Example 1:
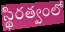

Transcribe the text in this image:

స్థిరత్వంలో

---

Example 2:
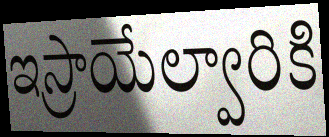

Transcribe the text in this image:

ఇస్రాయేల్వారికి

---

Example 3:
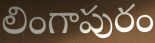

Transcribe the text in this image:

లింగాపురం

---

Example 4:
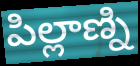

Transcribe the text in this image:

పిల్లాణ్ని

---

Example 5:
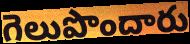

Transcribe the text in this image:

గెలుపొందారు